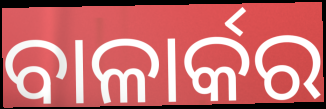
ବାଳାର୍କର